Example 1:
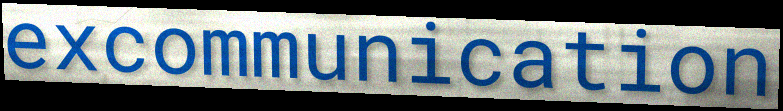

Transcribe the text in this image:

excommunication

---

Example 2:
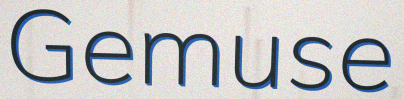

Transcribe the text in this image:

Gemuse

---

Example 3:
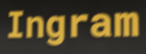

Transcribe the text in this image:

Ingram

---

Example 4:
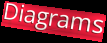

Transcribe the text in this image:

Diagrams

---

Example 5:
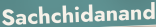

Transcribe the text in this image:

Sachchidanand